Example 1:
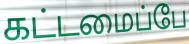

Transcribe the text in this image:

கட்டமைப்பே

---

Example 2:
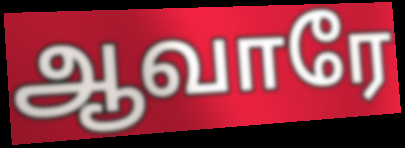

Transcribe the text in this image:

ஆவாரே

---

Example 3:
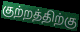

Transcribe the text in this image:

குற்றத்திற்கு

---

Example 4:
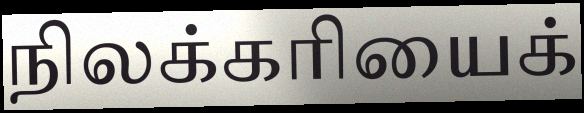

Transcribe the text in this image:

நிலக்கரியைக்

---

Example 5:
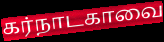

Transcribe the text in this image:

கர்நாடகாவை